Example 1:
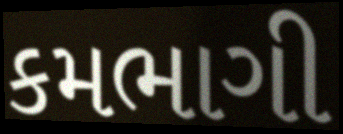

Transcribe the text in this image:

કમભાગી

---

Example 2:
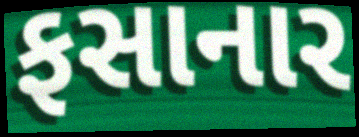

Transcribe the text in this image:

ફસાનાર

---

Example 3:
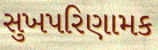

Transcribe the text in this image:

સુખપરિણામક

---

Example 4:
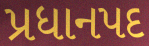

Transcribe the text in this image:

પ્રધાનપદ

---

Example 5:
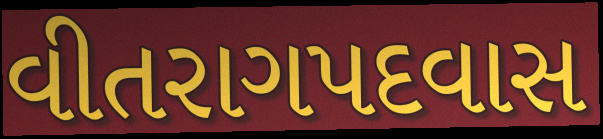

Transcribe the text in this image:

વીતરાગપદવાસ